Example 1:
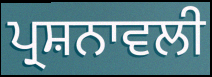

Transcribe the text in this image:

ਪ੍ਰਸ਼ਨਾਵਲੀ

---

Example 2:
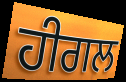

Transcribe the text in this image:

ਹੀਗਲ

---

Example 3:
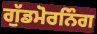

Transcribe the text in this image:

ਗੁੱਡਮੋਰਨਿੰਗ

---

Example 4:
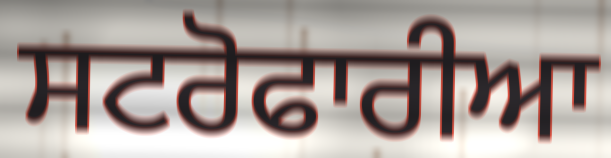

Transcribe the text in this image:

ਸਟਰੋਫਾਰੀਆ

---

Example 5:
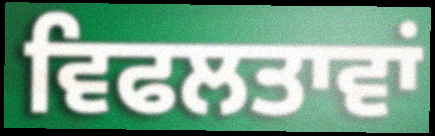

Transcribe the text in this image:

ਵਿਫਲਤਾਵਾਂ